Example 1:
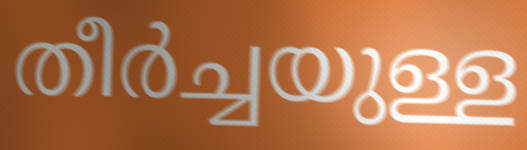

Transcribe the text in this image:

തീർച്ചയുള്ള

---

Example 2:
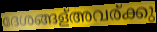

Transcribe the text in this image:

ദേശങ്ങള്അവര്ക്കു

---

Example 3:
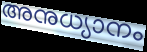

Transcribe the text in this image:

അനുധ്യാനം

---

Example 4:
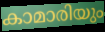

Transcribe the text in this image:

കാമാരിയും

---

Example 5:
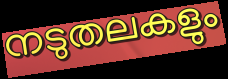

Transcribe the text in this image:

നടുതലകളും